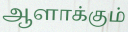
ஆளாக்கும்